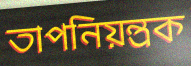
তাপনিয়ন্ত্রক